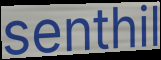
senthil